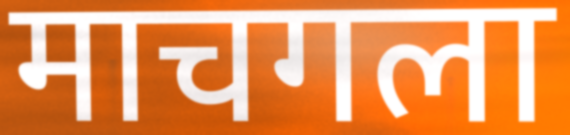
माचगला